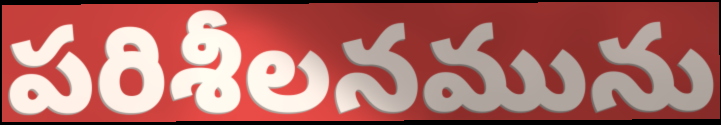
పరిశీలనమును